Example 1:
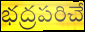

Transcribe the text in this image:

భద్రపరిచే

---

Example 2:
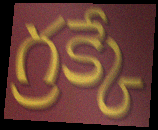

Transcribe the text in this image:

గ్రక్కే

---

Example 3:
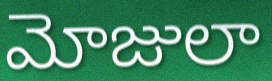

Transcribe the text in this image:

మోజులా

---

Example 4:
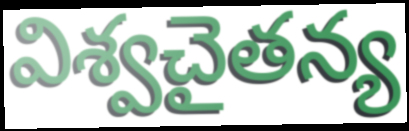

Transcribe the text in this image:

విశ్వచైతన్య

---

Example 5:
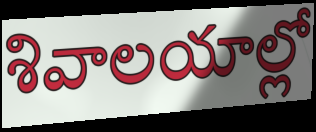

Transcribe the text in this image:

శివాలయాల్లో